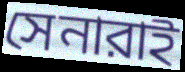
সেনারাই